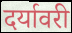
दर्यावरी